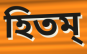
হিতম্